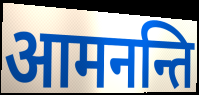
आमनन्ति